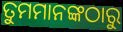
ତୁମମାନଙ୍କଠାରୁ